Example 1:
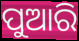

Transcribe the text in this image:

ପୁଆରି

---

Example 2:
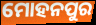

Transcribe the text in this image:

ମୋହନପୁର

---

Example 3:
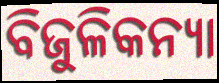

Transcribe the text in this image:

ବିଜୁଳିକନ୍ୟା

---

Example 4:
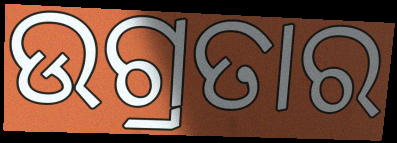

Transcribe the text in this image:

ଉଗ୍ରତାର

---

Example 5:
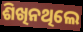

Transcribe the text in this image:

ଶିଖିନଥିଲେ